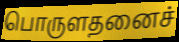
பொருளதனைச்